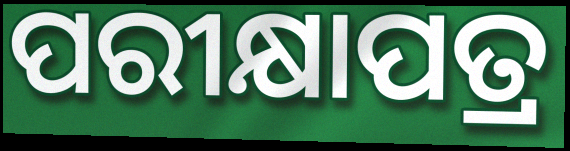
ପରୀକ୍ଷାପତ୍ର